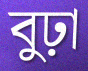
বুঢ়া